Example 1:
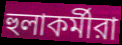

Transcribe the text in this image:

হুলাকর্মীরা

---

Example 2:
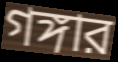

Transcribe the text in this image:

গঙ্গার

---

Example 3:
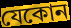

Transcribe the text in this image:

যেকোন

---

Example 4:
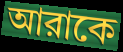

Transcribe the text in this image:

আরাকে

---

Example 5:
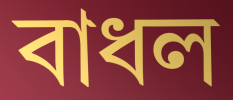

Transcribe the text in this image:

বাধল